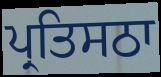
ਪ੍ਰਤਿਸਠਾ